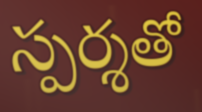
స్పర్శతో